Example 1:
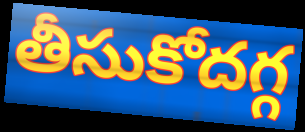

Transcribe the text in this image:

తీసుకోదగ్గ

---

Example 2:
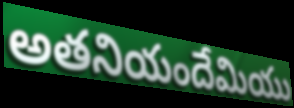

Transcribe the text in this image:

అతనియందేమియు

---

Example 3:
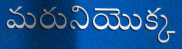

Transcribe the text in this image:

మరునియొక్క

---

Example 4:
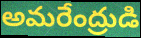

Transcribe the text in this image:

అమరేంద్రుడి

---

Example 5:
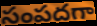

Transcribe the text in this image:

సంపదగా